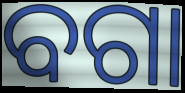
ବଗା